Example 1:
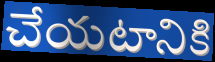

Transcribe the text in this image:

చేయటానికి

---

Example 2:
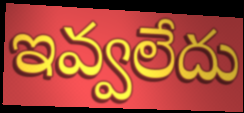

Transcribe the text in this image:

ఇవ్వలేదు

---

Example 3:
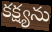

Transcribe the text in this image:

కక్ష్యను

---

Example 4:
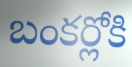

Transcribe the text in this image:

బంకర్లోకి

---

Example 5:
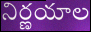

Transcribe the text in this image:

నిర్ణయాల